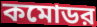
কমোডর